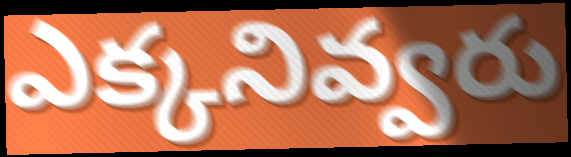
ఎక్కనివ్వరు